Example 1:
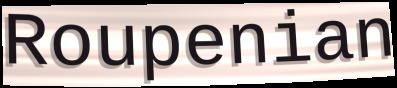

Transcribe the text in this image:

Roupenian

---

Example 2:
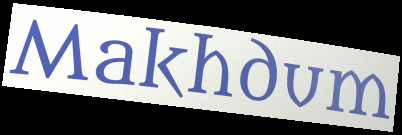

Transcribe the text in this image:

Makhdum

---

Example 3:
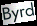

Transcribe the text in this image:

Byrd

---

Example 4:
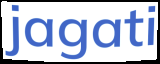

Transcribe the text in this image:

jagati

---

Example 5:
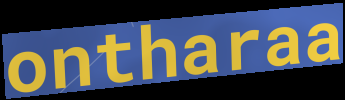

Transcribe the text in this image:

ontharaa